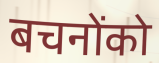
बचनोंको